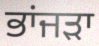
ਭਾਂਜੜਾ